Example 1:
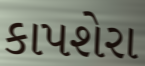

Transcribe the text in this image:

કાપશેરા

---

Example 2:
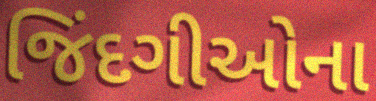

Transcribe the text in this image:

જિંદગીઓના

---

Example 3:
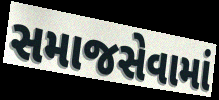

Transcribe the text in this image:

સમાજસેવામાં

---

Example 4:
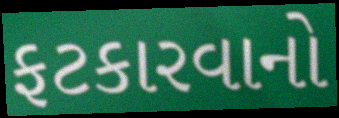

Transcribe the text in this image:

ફટકારવાનો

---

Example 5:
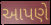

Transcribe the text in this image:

આપણે